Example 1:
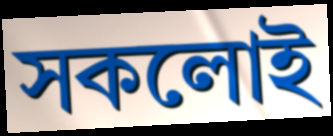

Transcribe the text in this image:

সকলোই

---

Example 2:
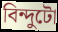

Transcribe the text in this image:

বিন্দুটো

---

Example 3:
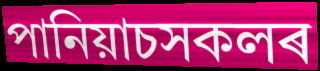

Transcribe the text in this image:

পানিয়াচসকলৰ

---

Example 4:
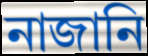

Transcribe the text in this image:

নাজানি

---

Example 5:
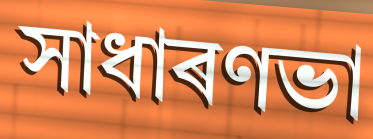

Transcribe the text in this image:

সাধাৰণভা